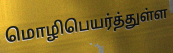
மொழிபெயர்த்துள்ள